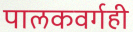
पालकवर्गही